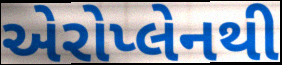
એરોપ્લેનથી